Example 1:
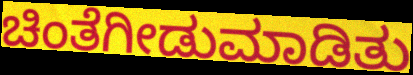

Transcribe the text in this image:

ಚಿಂತೆಗೀಡುಮಾಡಿತು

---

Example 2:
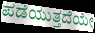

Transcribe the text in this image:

ಪಡೆಯುತ್ತದೆಯೇ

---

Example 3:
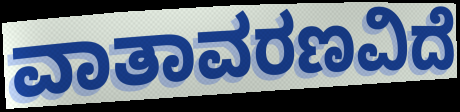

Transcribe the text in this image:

ವಾತಾವರಣವಿದೆ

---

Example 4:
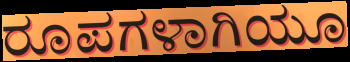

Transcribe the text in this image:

ರೂಪಗಳಾಗಿಯೂ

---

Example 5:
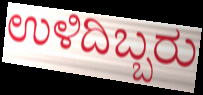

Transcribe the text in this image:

ಉಳಿದಿಬ್ಬರು